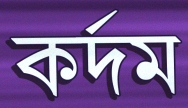
কর্দম